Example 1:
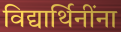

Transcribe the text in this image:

विद्यार्थिनींना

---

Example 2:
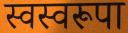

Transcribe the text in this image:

स्वस्वरूपा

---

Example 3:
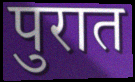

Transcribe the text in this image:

पुरात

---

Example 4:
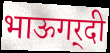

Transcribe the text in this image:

भाऊगर्दी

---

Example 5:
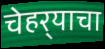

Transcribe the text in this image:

चेहर्‍याचा